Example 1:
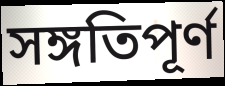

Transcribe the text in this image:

সঙ্গতিপূর্ণ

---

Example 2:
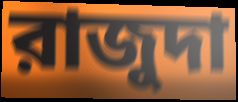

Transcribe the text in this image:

রাজুদা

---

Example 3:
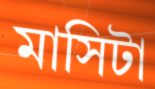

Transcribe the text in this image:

মাসিটা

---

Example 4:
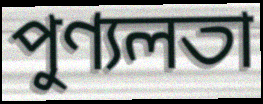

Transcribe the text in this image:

পুণ্যলতা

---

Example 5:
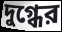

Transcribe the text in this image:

দুগ্ধের